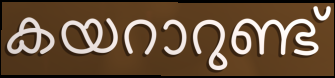
കയറാറുണ്ട്